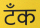
टॅंक